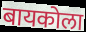
बायकोला